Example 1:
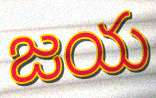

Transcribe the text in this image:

జయ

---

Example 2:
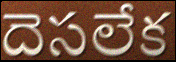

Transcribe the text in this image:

దెసలేక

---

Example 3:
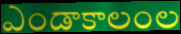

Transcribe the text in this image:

ఎండాకాలంల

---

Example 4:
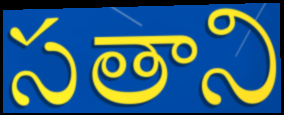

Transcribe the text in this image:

సతాని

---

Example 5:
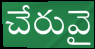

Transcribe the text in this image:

చేరువై